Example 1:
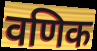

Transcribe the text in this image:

वणिक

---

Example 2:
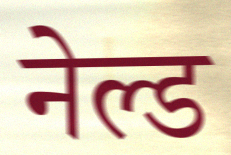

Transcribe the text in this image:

नेल्ड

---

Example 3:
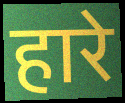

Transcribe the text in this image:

हारे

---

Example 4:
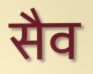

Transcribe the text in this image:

सैव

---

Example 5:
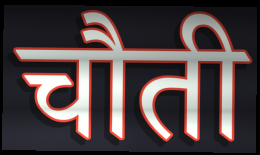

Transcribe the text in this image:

चौती